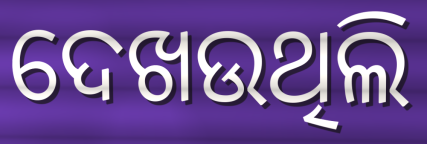
ଦେଖଉଥିଲି